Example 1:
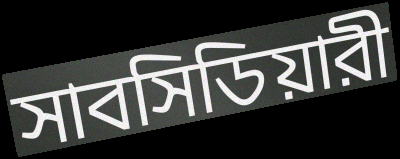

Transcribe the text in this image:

সাবসিডিয়ারী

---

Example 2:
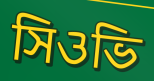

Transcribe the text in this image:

সিওভি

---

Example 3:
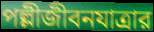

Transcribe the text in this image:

পল্লীজীবনযাত্রার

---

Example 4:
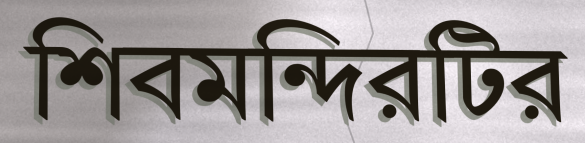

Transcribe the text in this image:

শিবমন্দিরটির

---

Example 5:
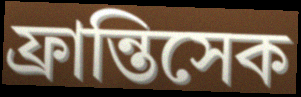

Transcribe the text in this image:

ফ্রান্তিসেক